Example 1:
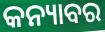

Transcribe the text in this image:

କନ୍ୟାବର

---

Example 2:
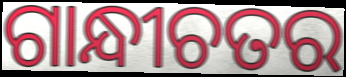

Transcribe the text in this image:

ଗାନ୍ଧୀଚତର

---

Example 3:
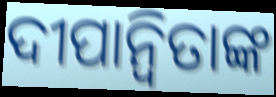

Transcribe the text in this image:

ଦୀପାନ୍ୱିତାଙ୍କ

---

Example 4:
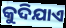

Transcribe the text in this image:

କୁଦିଯାଏ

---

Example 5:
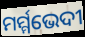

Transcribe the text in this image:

ମର୍ମ୍ମଭେଦୀ